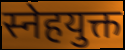
स्नेहयुक्त